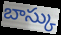
బాస్కు